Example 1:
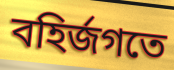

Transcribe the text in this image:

বহির্জগতে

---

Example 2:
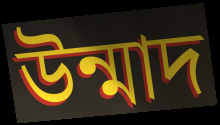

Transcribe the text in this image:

উন্মাদ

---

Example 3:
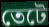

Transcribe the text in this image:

তেটে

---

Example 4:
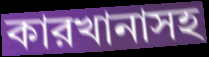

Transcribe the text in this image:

কারখানাসহ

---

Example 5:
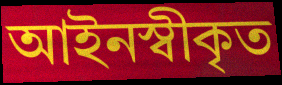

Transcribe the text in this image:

আইনস্বীকৃত